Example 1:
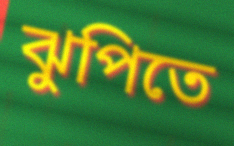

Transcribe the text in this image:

ঝুপিতে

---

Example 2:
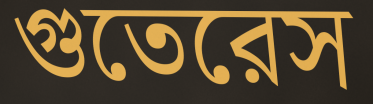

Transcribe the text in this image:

গুতেরেস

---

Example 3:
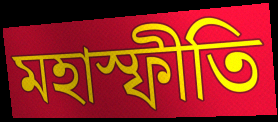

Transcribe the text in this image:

মহাস্ফীতি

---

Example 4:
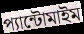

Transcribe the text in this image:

প্যান্টোমাইম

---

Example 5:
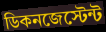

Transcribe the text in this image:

ডিকনজেস্টেন্ট